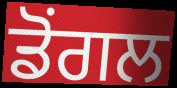
ਡੋਂਗਲ